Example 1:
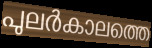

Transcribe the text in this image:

പുലർകാലത്തെ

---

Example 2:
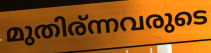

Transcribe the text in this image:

മുതിര്ന്നവരുടെ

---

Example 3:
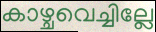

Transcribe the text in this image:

കാഴ്ചവെച്ചില്ലേ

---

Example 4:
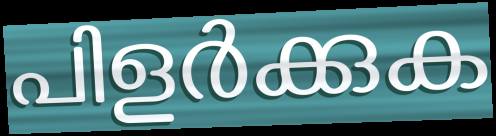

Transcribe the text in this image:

പിളർക്കുക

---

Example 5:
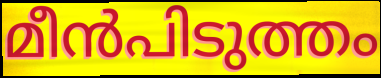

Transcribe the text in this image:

മീൻപിടുത്തം